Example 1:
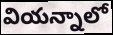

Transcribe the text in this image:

వియన్నాలో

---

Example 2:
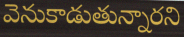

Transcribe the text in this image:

వెనుకాడుతున్నారని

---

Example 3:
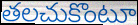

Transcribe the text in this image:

తలచుకొంటూ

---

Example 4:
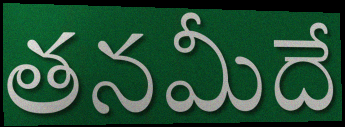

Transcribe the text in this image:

తనమీదే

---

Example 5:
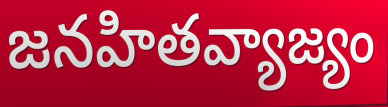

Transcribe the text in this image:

జనహితవ్యాజ్యం